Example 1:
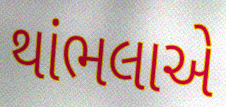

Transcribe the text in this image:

થાંભલાએ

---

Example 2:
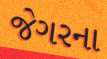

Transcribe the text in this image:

જેગરના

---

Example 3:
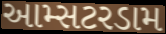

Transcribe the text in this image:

આમ્સટરડામ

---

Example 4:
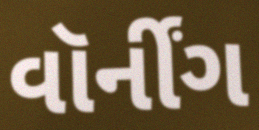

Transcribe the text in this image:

વૉર્નીંગ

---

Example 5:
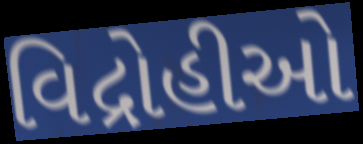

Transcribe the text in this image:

વિદ્રોહીઓ